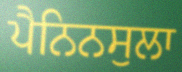
ਪੈਨਿਨਸੁਲਾ